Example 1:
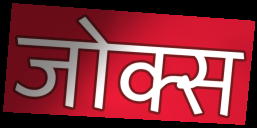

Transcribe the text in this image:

जोक्स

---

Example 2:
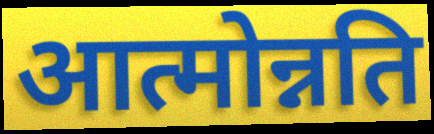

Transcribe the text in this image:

आत्मोन्नति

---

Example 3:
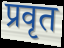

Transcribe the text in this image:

प्रवृत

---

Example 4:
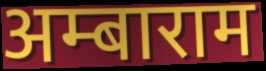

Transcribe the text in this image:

अम्बाराम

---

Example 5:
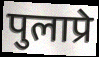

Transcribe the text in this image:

पुलाप्रे